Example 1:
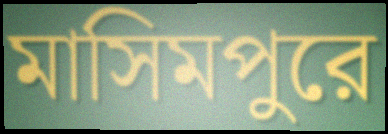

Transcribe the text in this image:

মাসিমপুরে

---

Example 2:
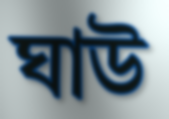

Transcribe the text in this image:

ঘাউ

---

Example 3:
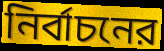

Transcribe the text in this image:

নির্বাচনের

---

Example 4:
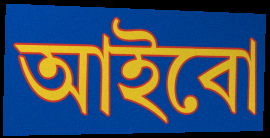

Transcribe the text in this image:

আইবো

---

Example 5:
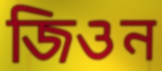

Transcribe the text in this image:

জিওন